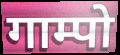
गाम्पो